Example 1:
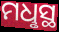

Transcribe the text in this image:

ମଧୢସ୍ଥ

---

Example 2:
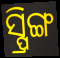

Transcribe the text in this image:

ସ୍ପ୍ରିଙ୍ଗ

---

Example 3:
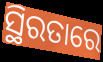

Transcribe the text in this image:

ସ୍ଥିରତାରେ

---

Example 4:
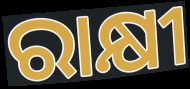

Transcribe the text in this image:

ରାକ୍ଷୀ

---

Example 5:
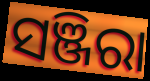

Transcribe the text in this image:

ସଞ୍ଜିରା